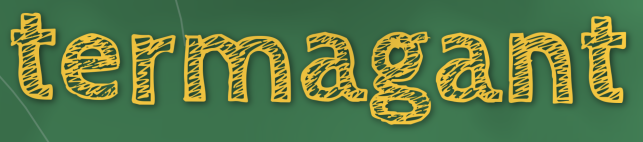
termagant